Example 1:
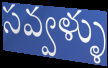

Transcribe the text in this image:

సవ్వళ్ళు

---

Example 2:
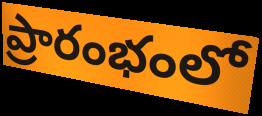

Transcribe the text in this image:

ప్రారంభంలో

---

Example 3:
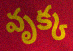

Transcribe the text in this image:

వృక్క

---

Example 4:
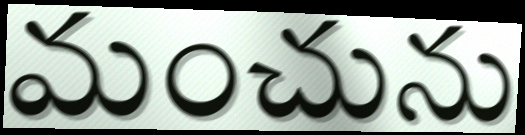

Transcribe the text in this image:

మంచును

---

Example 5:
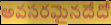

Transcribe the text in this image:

అవసరమైనదేదో